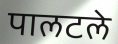
पालटले